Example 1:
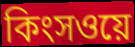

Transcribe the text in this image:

কিংসওয়ে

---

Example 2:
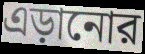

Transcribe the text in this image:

এড়ানোর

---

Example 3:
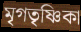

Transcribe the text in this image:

মৃগতৃষ্ণিকা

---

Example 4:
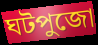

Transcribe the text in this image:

ঘটপুজো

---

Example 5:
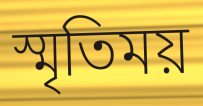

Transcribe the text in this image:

স্মৃতিময়